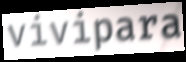
vivipara